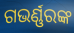
ଗଭର୍ଣ୍ଣରଙ୍କ